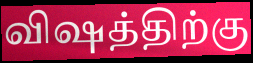
விஷத்திற்கு